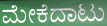
ಮೇಕೆದಾಟು